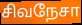
சிவநேசா